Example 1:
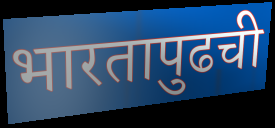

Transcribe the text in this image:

भारतापुढची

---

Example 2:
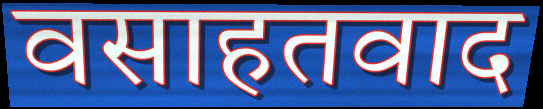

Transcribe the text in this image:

वसाहतवाद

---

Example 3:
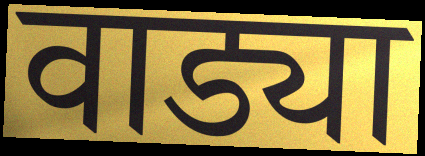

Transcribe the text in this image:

वाड्या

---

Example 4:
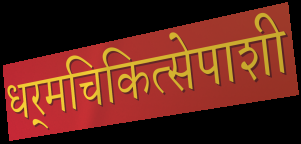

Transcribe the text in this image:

धर्मचिकित्सेपाशी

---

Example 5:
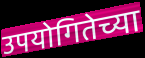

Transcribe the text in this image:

उपयोगितेच्या